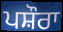
ਪਸ਼ੌਰਾ